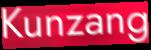
Kunzang